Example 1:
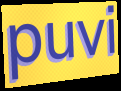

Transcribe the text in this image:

puvi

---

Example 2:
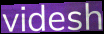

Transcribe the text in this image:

videsh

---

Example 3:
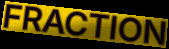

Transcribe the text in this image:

FRACTION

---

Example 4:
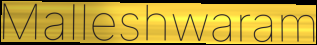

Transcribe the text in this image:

Malleshwaram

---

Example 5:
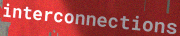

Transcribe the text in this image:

interconnections